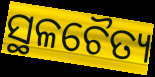
ସ୍ଥଳଚୈତ୍ୟ